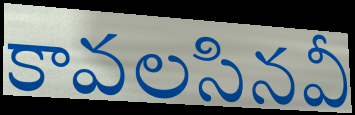
కావలసినవీ